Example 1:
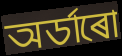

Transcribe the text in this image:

অৰ্ডাৰো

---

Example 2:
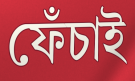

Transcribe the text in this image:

ফেঁচাই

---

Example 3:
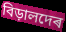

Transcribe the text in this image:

বিড়ালদেৰ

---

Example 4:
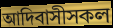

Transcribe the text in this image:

আদিবাসীসকল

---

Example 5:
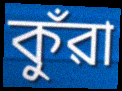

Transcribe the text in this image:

কুঁৱা